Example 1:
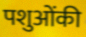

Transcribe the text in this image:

पशुओंकी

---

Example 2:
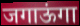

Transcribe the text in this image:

जगाऊंगा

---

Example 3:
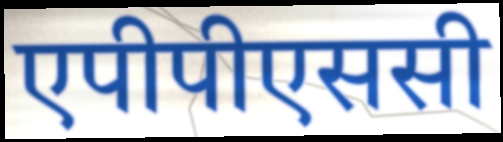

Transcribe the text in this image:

एपीपीएससी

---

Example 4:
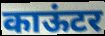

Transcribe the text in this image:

काऊंटर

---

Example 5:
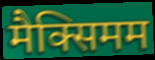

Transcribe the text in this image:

मैक्सिमम